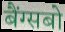
बैंग्सबो